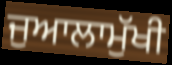
ਜੁਆਲਾਮੁੱਖੀ